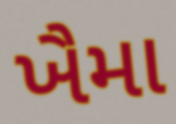
ખૈમા